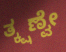
ತ್ಕ್ಷಣ್ವೇ